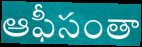
ఆఫీసంతా